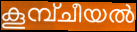
കൂമ്പ്ചീയൽ